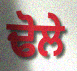
ਢੋਲੇ